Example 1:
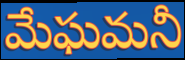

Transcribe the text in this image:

మేఘమనీ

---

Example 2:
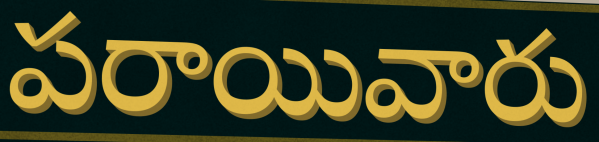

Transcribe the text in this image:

పరాయివారు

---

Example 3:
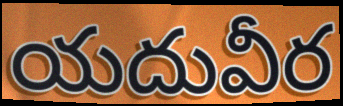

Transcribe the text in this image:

యదువీర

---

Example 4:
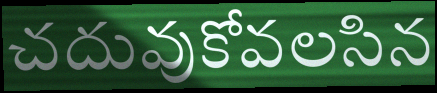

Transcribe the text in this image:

చదువుకోవలసిన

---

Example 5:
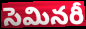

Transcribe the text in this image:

సెమినరీ